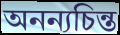
অনন্যচিন্ত